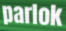
parlok